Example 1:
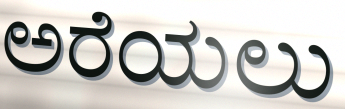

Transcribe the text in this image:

ಅರೆಯಲು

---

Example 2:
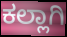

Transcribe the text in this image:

ಕಲ್ಲಾಗಿ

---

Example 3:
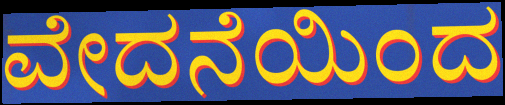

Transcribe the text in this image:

ವೇದನೆಯಿಂದ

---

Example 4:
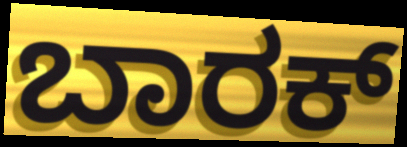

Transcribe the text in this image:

ಬಾರಕ್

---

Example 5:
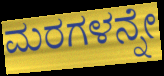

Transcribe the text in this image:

ಮರಗಳನ್ನೇ